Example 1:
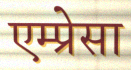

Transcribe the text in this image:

एम्प्रेसा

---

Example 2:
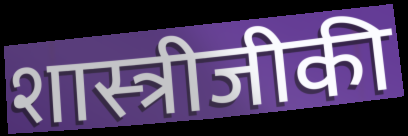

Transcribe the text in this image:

शास्त्रीजीकी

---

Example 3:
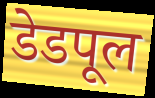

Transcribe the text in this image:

डेडपूल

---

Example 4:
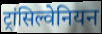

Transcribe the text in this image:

ट्रांसिल्वेनियन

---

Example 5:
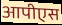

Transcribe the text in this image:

आपीएस